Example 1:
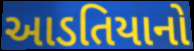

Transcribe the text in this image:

આડતિયાનો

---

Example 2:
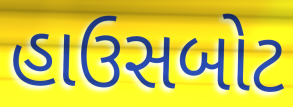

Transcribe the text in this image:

હાઉસબોટ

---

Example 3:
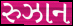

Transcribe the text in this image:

રુઝાન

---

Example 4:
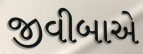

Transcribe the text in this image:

જીવીબાએ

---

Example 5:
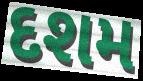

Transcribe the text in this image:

દશમ